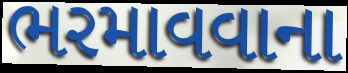
ભરમાવવાના